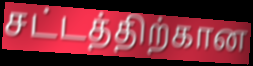
சட்டத்திற்கான